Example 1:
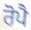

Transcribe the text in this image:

ਰੋਪੈ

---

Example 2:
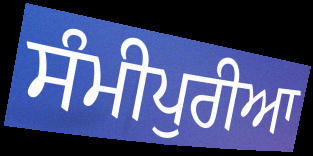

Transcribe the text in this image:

ਸੰਮੀਪੁਰੀਆ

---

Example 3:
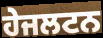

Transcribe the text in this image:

ਹੇਜਲਟਨ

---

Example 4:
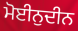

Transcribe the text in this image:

ਮੋਈਨੁਦੀਨ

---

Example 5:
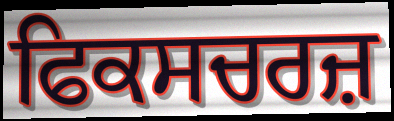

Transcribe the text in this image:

ਫਿਕਸਚਰਜ਼